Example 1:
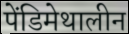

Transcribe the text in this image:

पेंडिमेथालीन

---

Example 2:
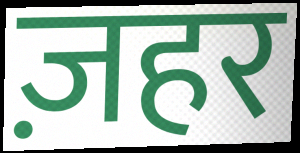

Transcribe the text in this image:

ज़हर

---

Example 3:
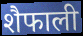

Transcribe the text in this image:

शैफाली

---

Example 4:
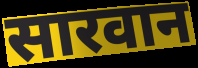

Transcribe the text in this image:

सारवान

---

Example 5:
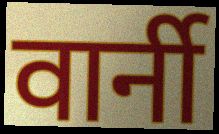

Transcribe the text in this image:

वार्नी